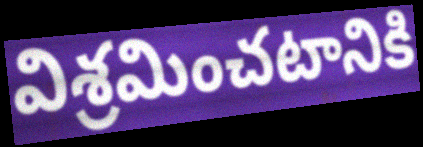
విశ్రమించటానికి